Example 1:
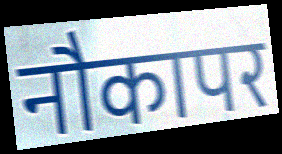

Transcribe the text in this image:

नौकापर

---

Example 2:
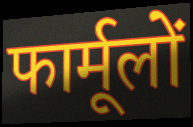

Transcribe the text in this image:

फार्मूलों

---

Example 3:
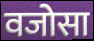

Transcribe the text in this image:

वजोसा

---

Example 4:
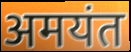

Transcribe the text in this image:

अमयंत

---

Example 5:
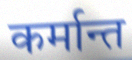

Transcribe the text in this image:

कर्मान्त